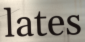
lates